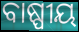
ବାଷ୍ପୀୟ